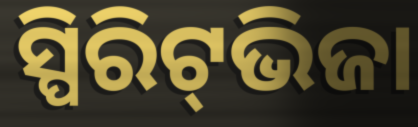
ସ୍ପିରିଟ୍‌ଭିଜା